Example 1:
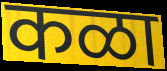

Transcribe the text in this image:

कळा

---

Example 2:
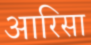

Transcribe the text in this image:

आरिसा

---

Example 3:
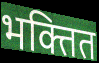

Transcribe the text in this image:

भक्तित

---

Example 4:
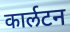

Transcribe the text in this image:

कार्लटन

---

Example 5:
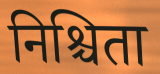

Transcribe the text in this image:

निश्चिता